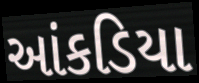
આંકડિયા